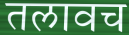
तलावच